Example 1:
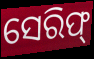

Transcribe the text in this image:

ସେରିଫ୍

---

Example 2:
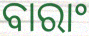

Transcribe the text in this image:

ବାରାଂ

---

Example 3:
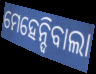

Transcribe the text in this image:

ମେହେନ୍ଦିବାଲା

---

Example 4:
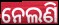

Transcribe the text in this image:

ନେଲଣି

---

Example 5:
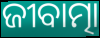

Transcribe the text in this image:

ଜୀବାତ୍ମା